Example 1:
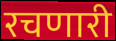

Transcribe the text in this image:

रचणारी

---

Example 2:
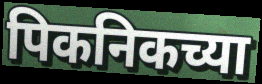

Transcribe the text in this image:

पिकनिकच्या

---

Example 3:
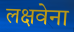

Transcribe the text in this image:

लक्षवेना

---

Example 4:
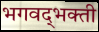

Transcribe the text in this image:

भगवद्‌भक्ती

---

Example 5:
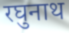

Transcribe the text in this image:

रघुनाथ